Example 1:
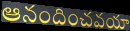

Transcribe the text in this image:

ఆనందించవయా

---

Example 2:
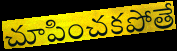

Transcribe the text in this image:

చూపించకపోతే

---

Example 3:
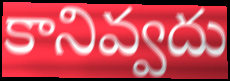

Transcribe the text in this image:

కానివ్వదు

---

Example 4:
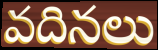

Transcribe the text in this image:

వదినలు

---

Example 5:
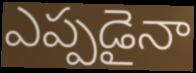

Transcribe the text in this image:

ఎప్పడైనా